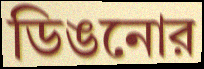
ডিঙনোর